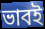
ভাবই